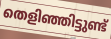
തെളിഞ്ഞിട്ടുണ്ട്